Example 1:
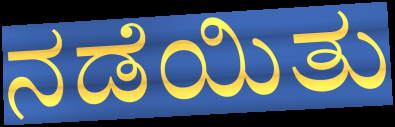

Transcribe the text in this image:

ನಡೆಯಿತು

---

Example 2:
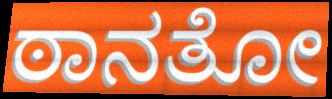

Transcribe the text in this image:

ಠಾನತೋ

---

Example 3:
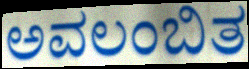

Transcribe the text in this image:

ಅವಲಂಬಿತ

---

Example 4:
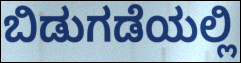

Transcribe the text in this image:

ಬಿಡುಗಡೆಯಲ್ಲಿ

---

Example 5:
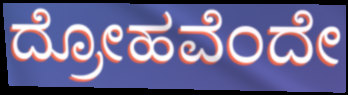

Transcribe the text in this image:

ದ್ರೋಹವೆಂದೇ